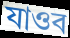
যাওব